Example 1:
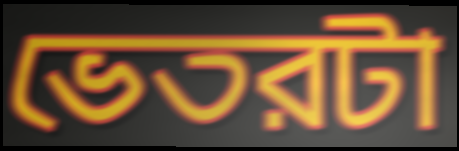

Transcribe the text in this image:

ভেতরটা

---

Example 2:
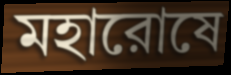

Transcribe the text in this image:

মহারোষে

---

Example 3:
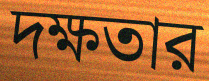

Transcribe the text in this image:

দক্ষতার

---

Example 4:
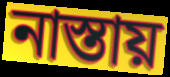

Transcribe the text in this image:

নাস্তায়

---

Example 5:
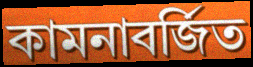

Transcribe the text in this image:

কামনাবর্জিত